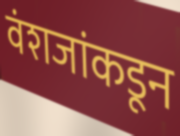
वंशजांकडून